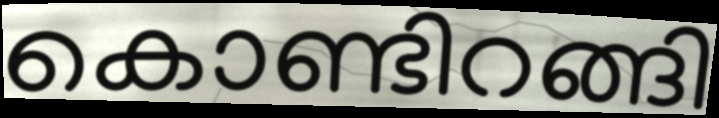
കൊണ്ടിറങ്ങി